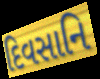
દિવસાનિ